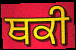
ਥਕੀ